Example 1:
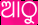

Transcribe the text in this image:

ଆଠୁ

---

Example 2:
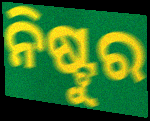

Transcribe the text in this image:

ନିଷ୍ଟୁର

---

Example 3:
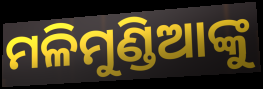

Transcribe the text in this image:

ମଳିମୁଣ୍ଡିଆଙ୍କୁ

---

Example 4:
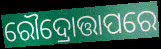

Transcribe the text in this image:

ରୌଦ୍ରୋତ୍ତାପରେ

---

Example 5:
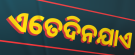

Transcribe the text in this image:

ଏତେଦିନଯାଏ